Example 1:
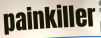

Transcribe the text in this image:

painkiller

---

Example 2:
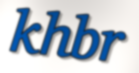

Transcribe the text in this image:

khbr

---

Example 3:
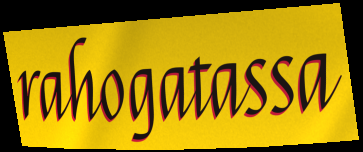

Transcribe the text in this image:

rahogatassa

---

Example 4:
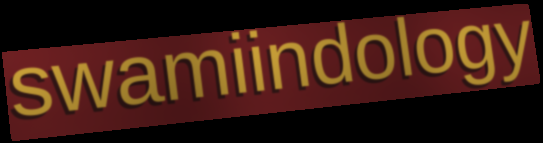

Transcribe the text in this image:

swamiindology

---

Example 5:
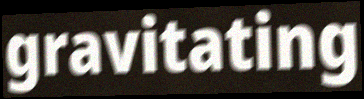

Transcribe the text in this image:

gravitating